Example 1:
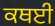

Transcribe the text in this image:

ਕਥਈ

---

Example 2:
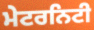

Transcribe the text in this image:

ਮੇਟਰਨਿਟੀ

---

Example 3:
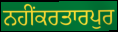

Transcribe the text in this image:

ਨਹੀਂਕਰਤਾਰਪੁਰ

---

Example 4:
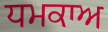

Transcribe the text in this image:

ਧਮਕਾਅ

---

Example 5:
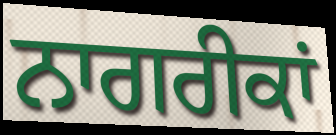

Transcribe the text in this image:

ਨਾਗਰੀਕਾਂ